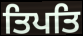
ਤਿਪਤਿ